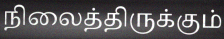
நிலைத்திருக்கும்